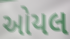
ઓયલ